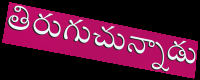
తిరుగుచున్నాడు